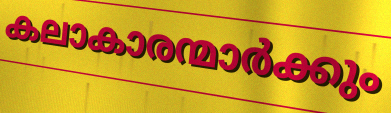
കലാകാരന്മാർക്കും